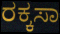
ರಕ್ಕಸಾ